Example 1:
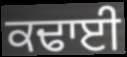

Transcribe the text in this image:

ਕਢਾਈ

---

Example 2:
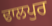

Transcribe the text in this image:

ਢਾਲਪੁਰ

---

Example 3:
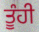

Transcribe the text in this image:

ਤੂੰਹੀ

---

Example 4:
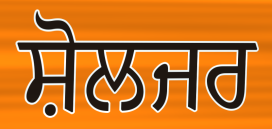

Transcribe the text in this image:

ਸ਼ੋਲਜਰ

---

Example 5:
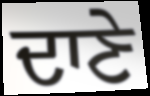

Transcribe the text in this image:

ਦਾਣੇ